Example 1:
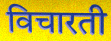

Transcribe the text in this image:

विचारती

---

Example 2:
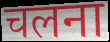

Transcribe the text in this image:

चलना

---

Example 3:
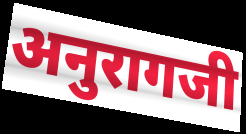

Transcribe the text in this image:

अनुरागजी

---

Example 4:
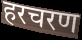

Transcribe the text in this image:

हरचरण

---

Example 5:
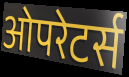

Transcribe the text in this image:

ओपरेटर्स